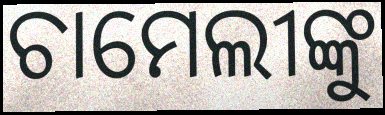
ଚାମେଲୀଙ୍କୁ